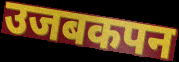
उजबकपन